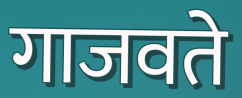
गाजवते